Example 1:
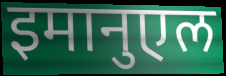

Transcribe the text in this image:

इमानुएल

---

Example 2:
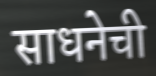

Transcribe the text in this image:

साधनेची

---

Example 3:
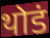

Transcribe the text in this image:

थोडं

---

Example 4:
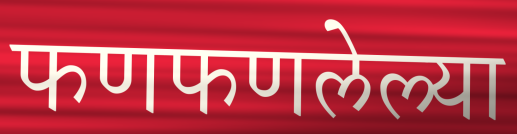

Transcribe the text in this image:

फणफणलेल्या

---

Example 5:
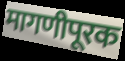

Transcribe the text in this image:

मागणीपूरक